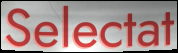
Selectat